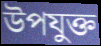
উপযুক্ত